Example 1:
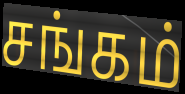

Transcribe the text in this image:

சங்கம்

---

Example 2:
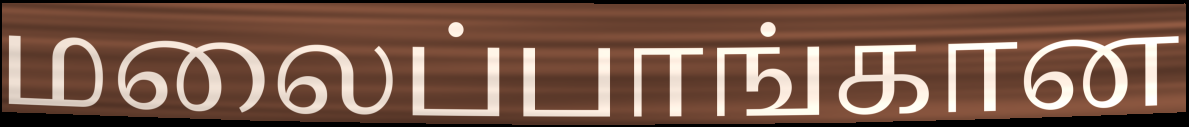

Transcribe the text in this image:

மலைப்பாங்கான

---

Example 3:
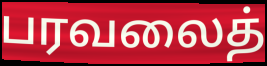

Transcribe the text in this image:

பரவலைத்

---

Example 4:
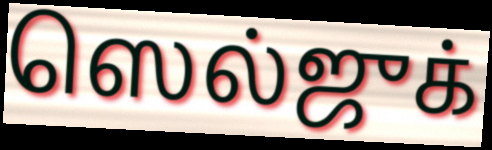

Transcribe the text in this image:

ஸெல்ஜுக்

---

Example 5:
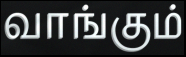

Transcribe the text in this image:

வாங்கும்